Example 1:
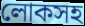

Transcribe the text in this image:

লোকসহ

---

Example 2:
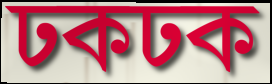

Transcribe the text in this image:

ঢকঢক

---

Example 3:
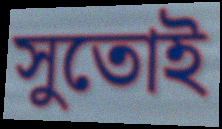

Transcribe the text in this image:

সুতোই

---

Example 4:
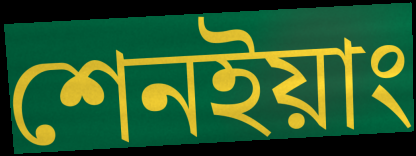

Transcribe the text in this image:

শেনইয়াং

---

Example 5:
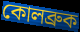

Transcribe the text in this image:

কোলব্রুক